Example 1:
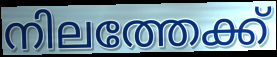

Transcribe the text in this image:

നിലത്തേക്ക്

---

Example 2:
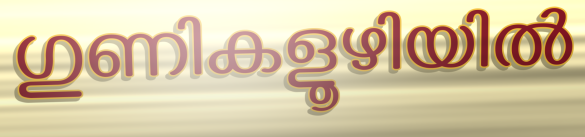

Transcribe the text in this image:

ഗുണികളൂഴിയിൽ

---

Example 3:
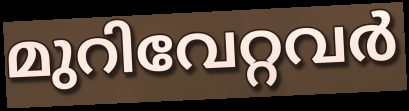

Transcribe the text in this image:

മുറിവേറ്റവർ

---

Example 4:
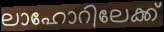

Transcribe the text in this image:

ലാഹോറിലേക്ക്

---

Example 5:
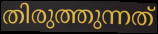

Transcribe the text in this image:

തിരുത്തുന്നത്